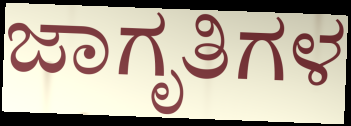
ಜಾಗೃತಿಗಳ